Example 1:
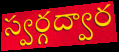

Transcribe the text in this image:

స్వర్గద్వార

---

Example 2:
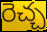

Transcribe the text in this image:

రెచ్చ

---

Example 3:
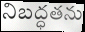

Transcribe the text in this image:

నిబద్ధతను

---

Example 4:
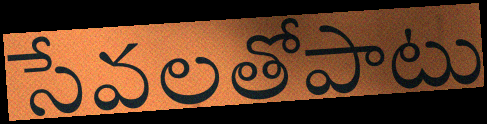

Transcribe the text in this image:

సేవలతోపాటు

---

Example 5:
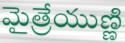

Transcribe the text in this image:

మైత్రేయుణ్ణి